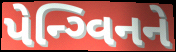
પેન્ગ્વિનને